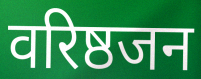
वरिष्ठजन